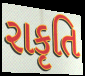
રાકૃતિ